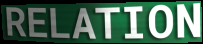
RELATION